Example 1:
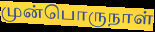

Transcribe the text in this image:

முன்பொருநாள்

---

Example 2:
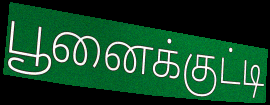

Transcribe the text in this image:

பூனைக்குட்டி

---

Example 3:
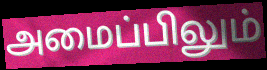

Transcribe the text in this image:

அமைப்பிலும்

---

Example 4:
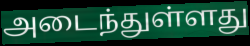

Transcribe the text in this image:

அடைந்துள்ளது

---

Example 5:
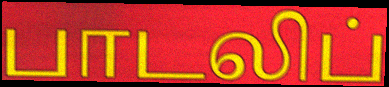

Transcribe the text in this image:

பாடலிப்